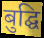
बुद्घि